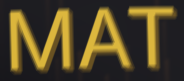
MAT